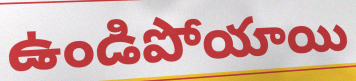
ఉండిపోయాయి